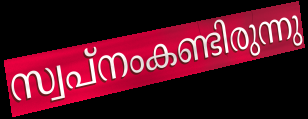
സ്വപ്നംകണ്ടിരുന്നു